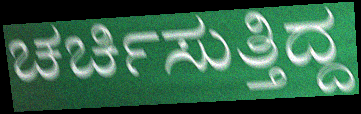
ಚರ್ಚಿಸುತ್ತಿದ್ದ